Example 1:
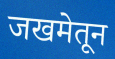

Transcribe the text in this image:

जखमेतून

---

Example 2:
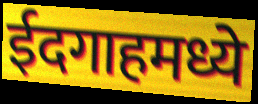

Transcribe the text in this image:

ईदगाहमध्ये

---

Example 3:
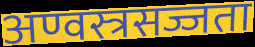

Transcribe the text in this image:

अण्वस्त्रसज्जता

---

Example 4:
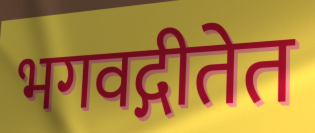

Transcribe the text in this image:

भगवद्गीतेत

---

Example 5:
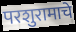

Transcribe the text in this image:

परशुरामाचे